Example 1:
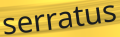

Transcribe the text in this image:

serratus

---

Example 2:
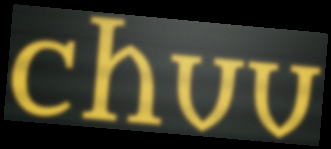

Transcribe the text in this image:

chuu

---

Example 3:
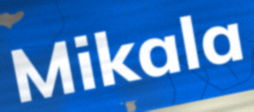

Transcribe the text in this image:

Mikala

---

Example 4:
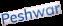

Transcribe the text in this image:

Peshwar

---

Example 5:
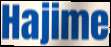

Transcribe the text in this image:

Hajime